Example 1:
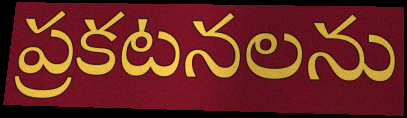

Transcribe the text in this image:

ప్రకటనలను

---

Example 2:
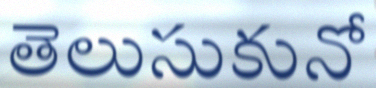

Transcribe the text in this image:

తెలుసుకునో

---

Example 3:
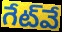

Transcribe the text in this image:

గేట్‌వే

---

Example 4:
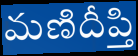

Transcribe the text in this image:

మణిదీప్తి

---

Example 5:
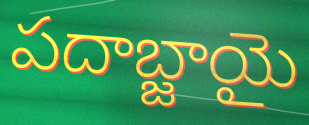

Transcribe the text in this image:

పదాబ్జాయై